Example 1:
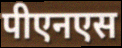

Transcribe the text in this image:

पीएनएस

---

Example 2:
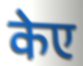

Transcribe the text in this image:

केए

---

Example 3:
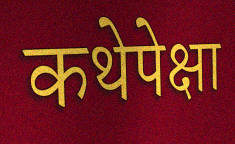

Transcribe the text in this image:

कथेपेक्षा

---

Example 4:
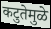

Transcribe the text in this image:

कटुतेमुळे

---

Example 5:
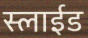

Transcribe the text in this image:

स्लाईड